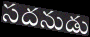
సదనుడు